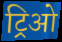
ट्रिओ